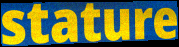
stature